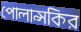
পোলান্সকির